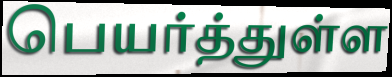
பெயர்த்துள்ள